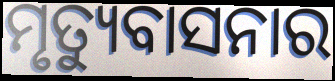
ମୃତ୍ୟୁବାସନାର